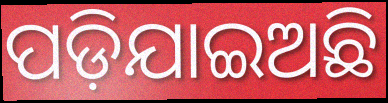
ପଡ଼ିଯାଇଅଛି